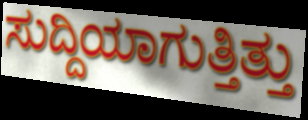
ಸುದ್ದಿಯಾಗುತ್ತಿತ್ತು